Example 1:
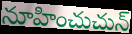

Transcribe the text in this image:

నూహించుచున్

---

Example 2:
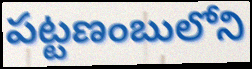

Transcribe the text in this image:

పట్టణంబులోని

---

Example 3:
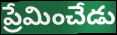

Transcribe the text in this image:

ప్రేమించేడు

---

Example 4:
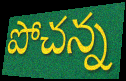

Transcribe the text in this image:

పోచన్న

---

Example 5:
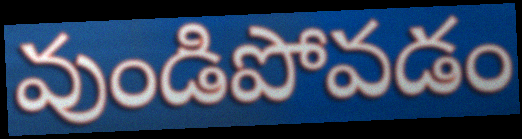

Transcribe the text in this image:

వుండిపోవడం